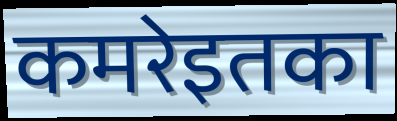
कमरेइतका